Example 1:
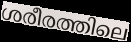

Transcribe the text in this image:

ശരീരത്തിലെ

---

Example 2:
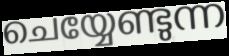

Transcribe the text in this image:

ചെയ്യേണ്ടുന്ന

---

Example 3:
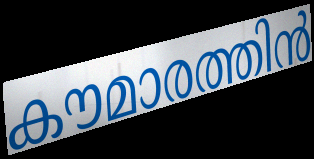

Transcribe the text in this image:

കൗമാരത്തിൻ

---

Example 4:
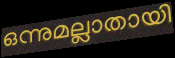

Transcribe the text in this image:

ഒന്നുമല്ലാതായി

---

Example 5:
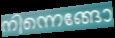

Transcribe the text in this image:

നിന്നെങ്ങോ